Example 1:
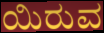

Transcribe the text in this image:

ಯಿರುವ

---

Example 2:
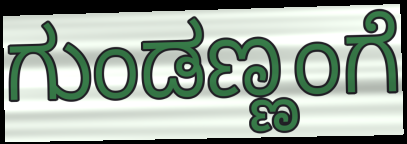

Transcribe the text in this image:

ಗುಂಡಣ್ಣಂಗೆ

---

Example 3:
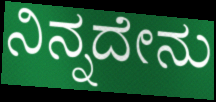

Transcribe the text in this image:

ನಿನ್ನದೇನು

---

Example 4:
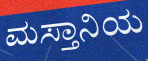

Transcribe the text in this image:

ಮಸ್ತಾನಿಯ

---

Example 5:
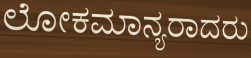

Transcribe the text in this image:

ಲೋಕಮಾನ್ಯರಾದರು